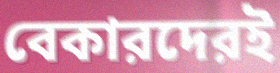
বেকারদেরই